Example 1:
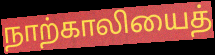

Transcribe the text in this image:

நாற்காலியைத்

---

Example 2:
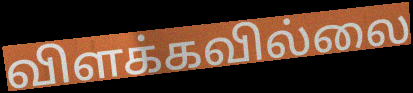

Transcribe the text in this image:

விளக்கவில்லை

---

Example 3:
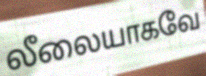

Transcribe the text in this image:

லீலையாகவே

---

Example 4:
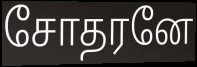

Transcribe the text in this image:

சோதரனே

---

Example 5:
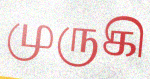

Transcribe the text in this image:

முருகி